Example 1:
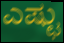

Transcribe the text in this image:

ಎಷ್ಟು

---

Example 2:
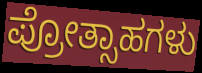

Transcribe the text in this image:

ಪ್ರೋತ್ಸಾಹಗಳು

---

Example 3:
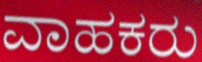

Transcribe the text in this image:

ವಾಹಕರು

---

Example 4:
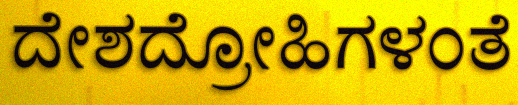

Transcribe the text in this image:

ದೇಶದ್ರೋಹಿಗಳಂತೆ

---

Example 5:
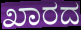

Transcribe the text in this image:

ಖಾರದ